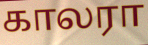
காலரா